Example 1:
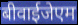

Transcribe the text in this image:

बीवाईजेएम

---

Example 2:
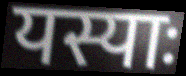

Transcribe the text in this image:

यस्याः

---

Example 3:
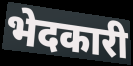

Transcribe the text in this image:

भेदकारी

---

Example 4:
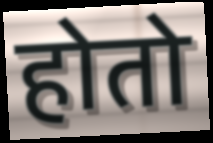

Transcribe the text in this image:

होतो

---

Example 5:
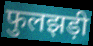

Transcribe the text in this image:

फुलझड़ी